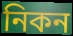
নিকন